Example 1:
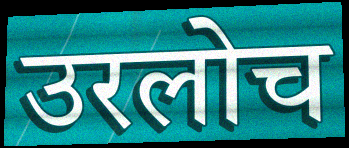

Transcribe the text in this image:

उरलोच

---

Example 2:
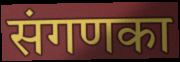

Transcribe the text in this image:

संगणका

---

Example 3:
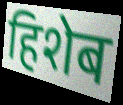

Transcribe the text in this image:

हिशेब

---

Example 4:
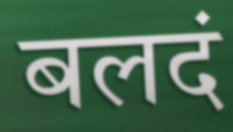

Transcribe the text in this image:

बलदं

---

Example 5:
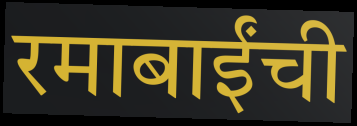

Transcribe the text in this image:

रमाबाईंची